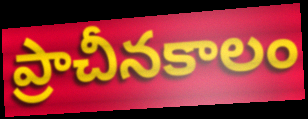
ప్రాచీనకాలం